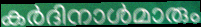
കർദിനാൾമാരും